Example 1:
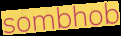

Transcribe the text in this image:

sombhob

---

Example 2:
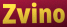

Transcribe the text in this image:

Zvino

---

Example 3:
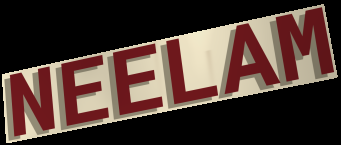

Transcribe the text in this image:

NEELAM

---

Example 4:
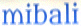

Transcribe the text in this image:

mibali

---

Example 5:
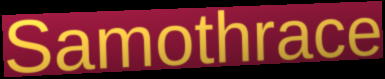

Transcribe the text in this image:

Samothrace